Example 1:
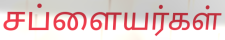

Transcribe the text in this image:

சப்ளையர்கள்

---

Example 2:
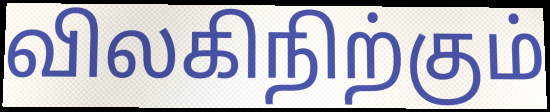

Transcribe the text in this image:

விலகிநிற்கும்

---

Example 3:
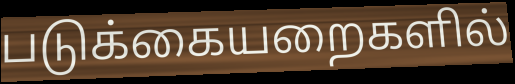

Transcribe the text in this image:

படுக்கையறைகளில்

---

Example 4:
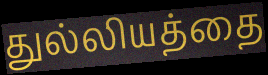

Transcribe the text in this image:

துல்லியத்தை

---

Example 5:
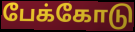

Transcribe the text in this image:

பேக்கோடு